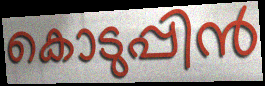
കൊടുപ്പിൻ